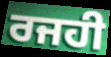
ਰਜਹੀ